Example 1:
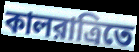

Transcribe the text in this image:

কালরাত্রিতে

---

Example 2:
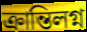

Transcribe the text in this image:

ক্রান্তিলগ্ন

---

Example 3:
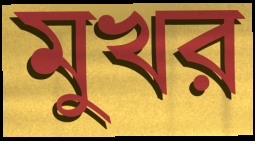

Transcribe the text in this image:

মুখর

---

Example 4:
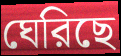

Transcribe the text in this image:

ঘেরিছে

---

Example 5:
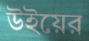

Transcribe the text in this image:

উইয়ের